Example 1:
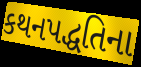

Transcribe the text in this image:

કથનપદ્ધતિના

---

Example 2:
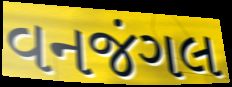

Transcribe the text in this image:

વનજંગલ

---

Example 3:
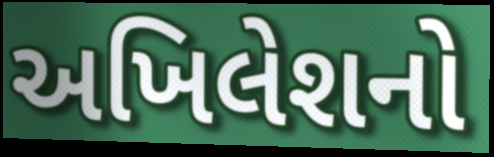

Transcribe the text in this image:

અખિલેશનો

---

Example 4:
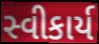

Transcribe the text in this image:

સ્વીકાર્ય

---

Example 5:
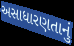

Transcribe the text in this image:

અસાધારણતાનું